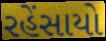
રહેંસાયો